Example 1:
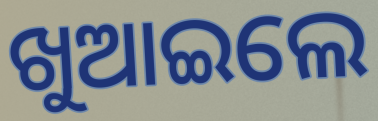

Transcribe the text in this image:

ଖୁଆଇଲେ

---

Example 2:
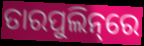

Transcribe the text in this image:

ତାରପୁଲିନ୍‌ରେ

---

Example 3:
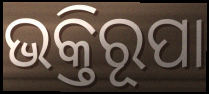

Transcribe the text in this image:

ଭକ୍ତିରୂପା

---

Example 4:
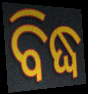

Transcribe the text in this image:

ବିଦ୍ଧ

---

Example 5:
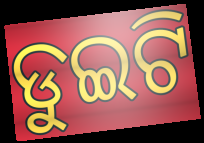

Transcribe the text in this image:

ଡୁଇଟି